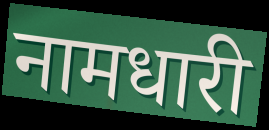
नामधारी